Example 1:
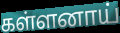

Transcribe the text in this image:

கள்ளனாய்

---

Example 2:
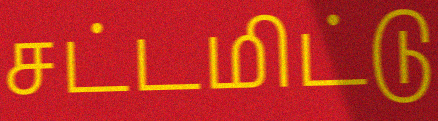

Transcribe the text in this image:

சட்டமிட்டு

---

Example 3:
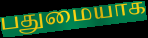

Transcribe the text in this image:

பதுமையாக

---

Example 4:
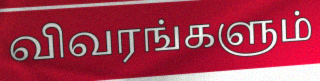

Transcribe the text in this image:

விவரங்களும்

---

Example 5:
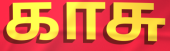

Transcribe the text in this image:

காசு